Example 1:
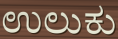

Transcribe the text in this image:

ಉಲುಕು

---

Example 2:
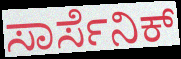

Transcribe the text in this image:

ಸಾರ್ಸೆನಿಕ್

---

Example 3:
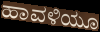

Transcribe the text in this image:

ಹಾವಳಿಯೂ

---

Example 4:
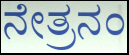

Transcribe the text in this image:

ನೇತ್ರನಂ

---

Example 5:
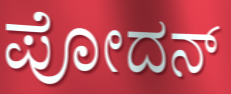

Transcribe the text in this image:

ಪೋದನ್